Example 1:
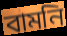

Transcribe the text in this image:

বামনি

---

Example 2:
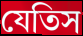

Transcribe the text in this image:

যেতিস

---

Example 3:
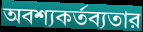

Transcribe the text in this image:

অবশ্যকর্তব্যতার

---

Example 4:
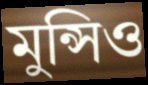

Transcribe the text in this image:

মুন্সিও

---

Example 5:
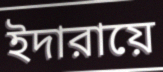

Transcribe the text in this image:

ইদারায়ে